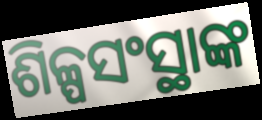
ଶିଳ୍ପସଂସ୍ଥାଙ୍କ